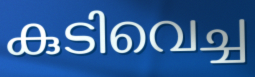
കുടിവെച്ച